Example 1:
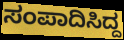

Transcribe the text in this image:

ಸಂಪಾದಿಸಿದ್ದ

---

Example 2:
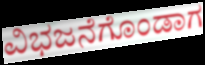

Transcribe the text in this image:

ವಿಭಜನೆಗೊಂಡಾಗ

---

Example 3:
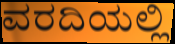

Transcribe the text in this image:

ವರದಿಯಲ್ಲಿ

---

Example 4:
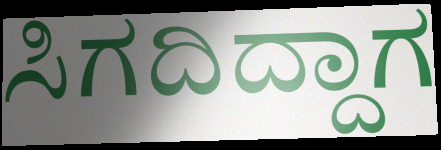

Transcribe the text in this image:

ಸಿಗದಿದ್ದಾಗ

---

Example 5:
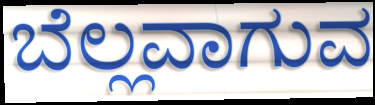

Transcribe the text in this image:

ಬೆಲ್ಲವಾಗುವ